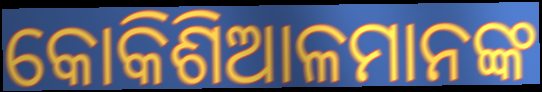
କୋକିଶିଆଳମାନଙ୍କ